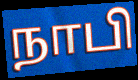
நாபி